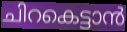
ചിറകെട്ടാൻ